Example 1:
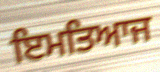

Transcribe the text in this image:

ਇਮਤਿਆਜ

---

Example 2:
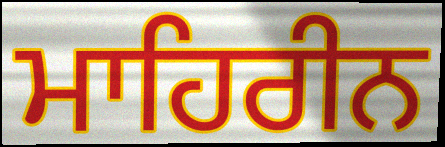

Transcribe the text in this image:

ਮਾਹਿਰੀਨ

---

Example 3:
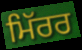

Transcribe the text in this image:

ਮਿੱਰਰ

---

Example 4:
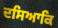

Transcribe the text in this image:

ਦਸਿਆਕਿ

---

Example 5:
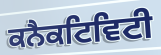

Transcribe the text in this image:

ਕਨੈਕਟਿਵਿਟੀ